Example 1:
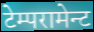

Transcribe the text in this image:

टेम्परामेन्ट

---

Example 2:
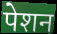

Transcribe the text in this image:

पेशन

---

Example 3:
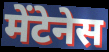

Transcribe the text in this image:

मेंटेनेस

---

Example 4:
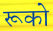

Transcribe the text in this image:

रूको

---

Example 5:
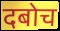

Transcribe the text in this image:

दबोच